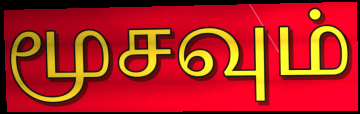
மூசவும்